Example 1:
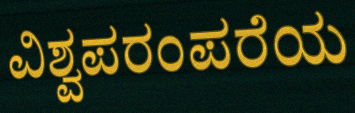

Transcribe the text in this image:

ವಿಶ್ವಪರಂಪರೆಯ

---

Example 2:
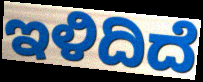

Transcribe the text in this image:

ಇಳಿದಿದೆ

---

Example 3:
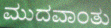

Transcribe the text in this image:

ಮುದವಾಂತು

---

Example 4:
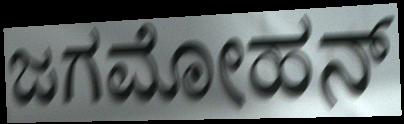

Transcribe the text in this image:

ಜಗಮೋಹನ್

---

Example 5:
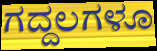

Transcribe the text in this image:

ಗದ್ದಲಗಳೂ